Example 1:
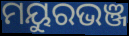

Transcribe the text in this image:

ମୟୁରଭଞ୍ଜ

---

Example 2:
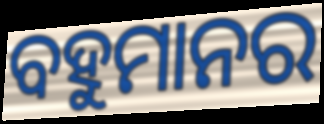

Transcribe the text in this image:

ବହୁମାନର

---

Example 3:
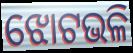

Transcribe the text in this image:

ଝୋଟଭଳି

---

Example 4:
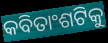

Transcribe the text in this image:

କବିତାଂଶଟିକୁ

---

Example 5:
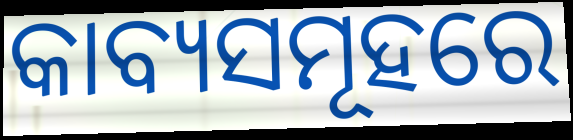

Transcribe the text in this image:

କାବ୍ୟସମୂହରେ